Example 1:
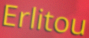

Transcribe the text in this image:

Erlitou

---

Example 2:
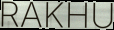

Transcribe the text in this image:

RAKHU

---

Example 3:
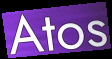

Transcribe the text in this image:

Atos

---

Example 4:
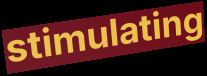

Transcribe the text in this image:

stimulating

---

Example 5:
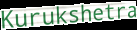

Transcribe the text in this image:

Kurukshetra